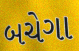
બચેગા